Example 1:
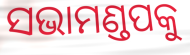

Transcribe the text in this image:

ସଭାମଣ୍ଡପକୁ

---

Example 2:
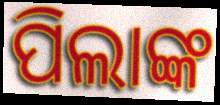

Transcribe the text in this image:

ପିଲାଙ୍କ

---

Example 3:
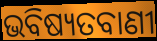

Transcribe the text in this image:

ଭବିଷ୍ୟତବାଣୀ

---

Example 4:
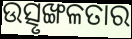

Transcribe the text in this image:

ଉତ୍ସୃଙ୍ଖଳତାର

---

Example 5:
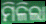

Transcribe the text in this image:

ମିଳିଲା